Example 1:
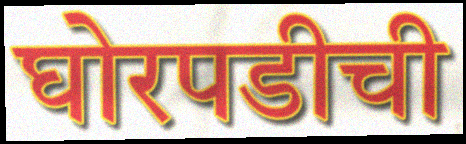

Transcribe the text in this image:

घोरपडीची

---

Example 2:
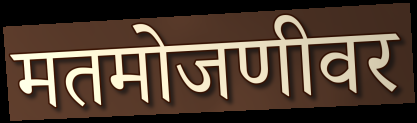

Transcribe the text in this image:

मतमोजणीवर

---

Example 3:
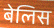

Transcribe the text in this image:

बेलिस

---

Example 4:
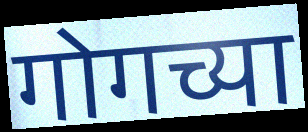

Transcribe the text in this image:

गोगच्या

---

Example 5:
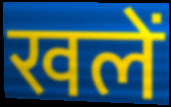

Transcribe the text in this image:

खलें